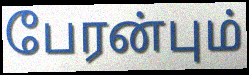
பேரன்பும்